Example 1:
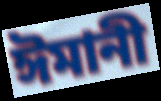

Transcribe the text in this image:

ঈমানী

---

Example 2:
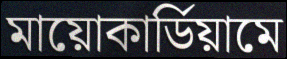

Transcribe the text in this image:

মায়োকার্ডিয়ামে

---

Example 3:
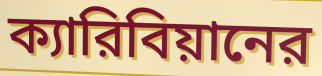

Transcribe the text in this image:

ক্যারিবিয়ানের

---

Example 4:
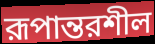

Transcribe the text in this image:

রূপান্তরশীল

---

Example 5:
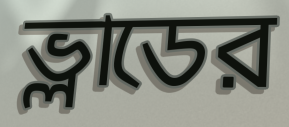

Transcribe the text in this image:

ভ্লাডের